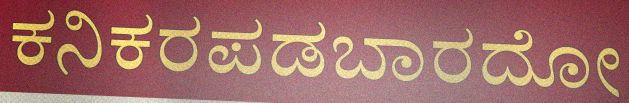
ಕನಿಕರಪಡಬಾರದೋ